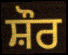
ਸ਼ੌਰ